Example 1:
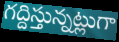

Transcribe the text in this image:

గద్దిస్తున్నట్లుగా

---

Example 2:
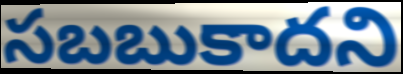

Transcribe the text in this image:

సబబుకాదని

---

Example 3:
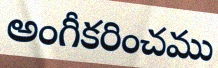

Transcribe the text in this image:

అంగీకరించము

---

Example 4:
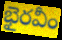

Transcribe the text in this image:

భైరవీం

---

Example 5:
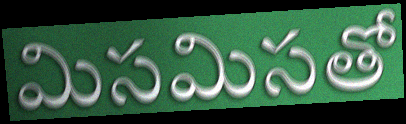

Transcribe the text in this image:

మిసమిసతో